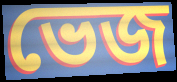
ভেজ